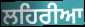
ਲਹਿਰੀਆ